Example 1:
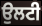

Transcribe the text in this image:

ਉਲਟੀ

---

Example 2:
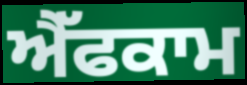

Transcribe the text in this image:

ਐੱਫਕਾਮ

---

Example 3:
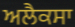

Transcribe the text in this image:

ਅਲੈਕਸਾ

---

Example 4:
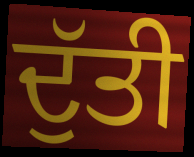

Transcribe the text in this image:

ਦੁੱਤੀ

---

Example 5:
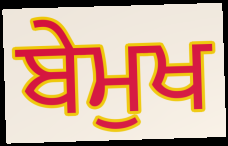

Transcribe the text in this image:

ਬੇਮੁਖ